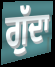
ਗੁੱਦਾ